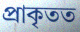
প্ৰাকৃতত